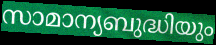
സാമാന്യബുദ്ധിയും